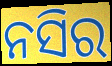
ନସିର